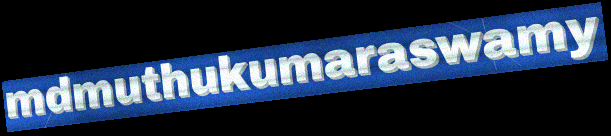
mdmuthukumaraswamy